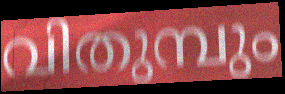
വിതുമ്പും